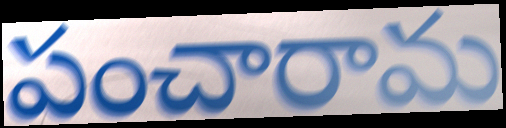
పంచారామ